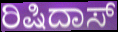
ರಿಷಿದಾಸ್